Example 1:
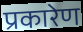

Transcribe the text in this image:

प्रकारेण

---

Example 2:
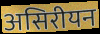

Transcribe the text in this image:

असिरीयन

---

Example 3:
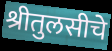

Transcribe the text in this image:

श्रीतुलसीचे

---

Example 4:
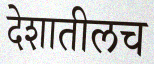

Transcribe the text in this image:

देशातीलच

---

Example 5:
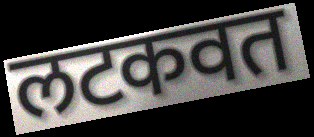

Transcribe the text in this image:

लटकवत